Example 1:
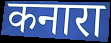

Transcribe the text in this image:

कनारा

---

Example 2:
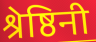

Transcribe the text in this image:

श्रेष्ठिनी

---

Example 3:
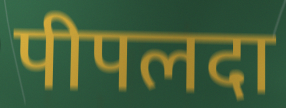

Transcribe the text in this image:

पीपलदा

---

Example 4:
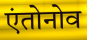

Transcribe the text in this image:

एंतोनोव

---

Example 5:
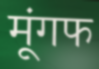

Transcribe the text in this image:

मूंगफ